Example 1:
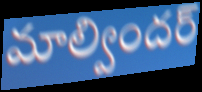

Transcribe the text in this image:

మాల్విందర్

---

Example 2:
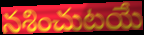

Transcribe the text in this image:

నశించుటయే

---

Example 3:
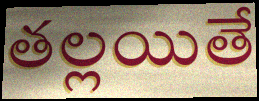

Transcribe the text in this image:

తల్లయితే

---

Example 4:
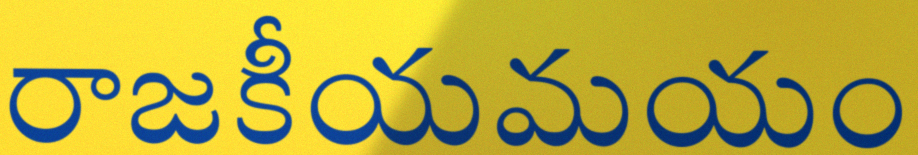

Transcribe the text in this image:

రాజకీయమయం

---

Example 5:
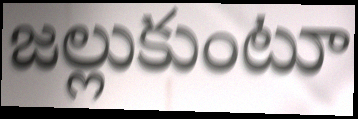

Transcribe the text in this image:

జల్లుకుంటూ